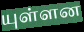
யுள்ளன